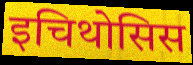
इचिथोसिस